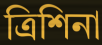
ত্রিশিনা